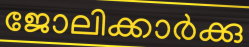
ജോലിക്കാർക്കു